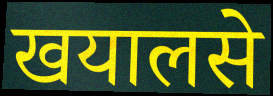
खयालसे